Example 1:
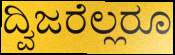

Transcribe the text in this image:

ದ್ವಿಜರೆಲ್ಲರೂ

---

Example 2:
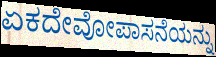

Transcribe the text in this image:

ಏಕದೇವೋಪಾಸನೆಯನ್ನು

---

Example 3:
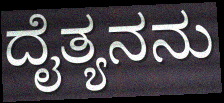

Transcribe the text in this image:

ದೈತ್ಯನನು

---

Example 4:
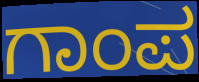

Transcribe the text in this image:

ಗಾಂಪ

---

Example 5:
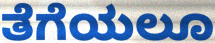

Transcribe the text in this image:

ತೆಗೆಯಲೂ